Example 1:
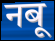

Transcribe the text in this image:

नबू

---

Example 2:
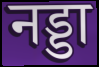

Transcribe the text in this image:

नड्डा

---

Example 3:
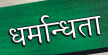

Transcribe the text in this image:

धर्मान्धता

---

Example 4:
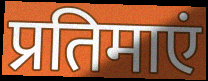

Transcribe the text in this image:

प्रतिमाएं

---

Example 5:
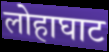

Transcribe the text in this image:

लोहाघाट